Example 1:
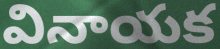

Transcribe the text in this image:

వినాయక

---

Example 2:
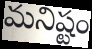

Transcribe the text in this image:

మనిష్టం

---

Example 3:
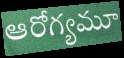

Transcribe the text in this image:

ఆరోగ్యమూ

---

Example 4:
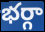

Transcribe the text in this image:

భర్గా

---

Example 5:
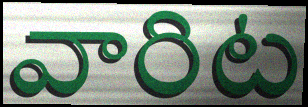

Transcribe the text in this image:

వారిట